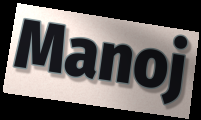
Manoj